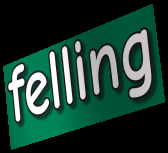
felling